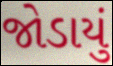
જોડાયું